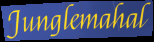
Junglemahal